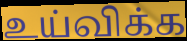
உய்விக்க